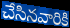
చేసినవారికి